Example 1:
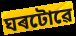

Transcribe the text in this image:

ঘৰটোৱে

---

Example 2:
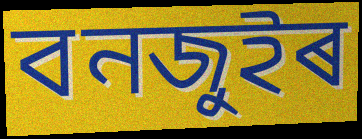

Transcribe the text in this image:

বনজুইৰ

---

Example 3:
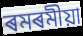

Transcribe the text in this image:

ৰমৰমীয়া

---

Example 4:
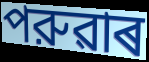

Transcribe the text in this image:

পৰুৱাৰ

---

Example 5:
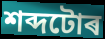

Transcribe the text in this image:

শব্দটোৰ